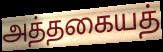
அத்தகையத்